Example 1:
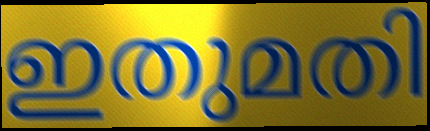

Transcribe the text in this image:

ഇതുമതി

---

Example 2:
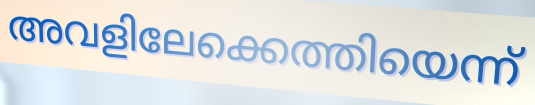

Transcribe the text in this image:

അവളിലേക്കെത്തിയെന്ന്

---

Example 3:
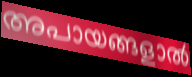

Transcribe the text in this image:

അപായങ്ങളാൽ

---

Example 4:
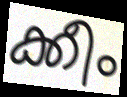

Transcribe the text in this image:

ക്കീം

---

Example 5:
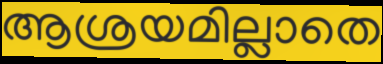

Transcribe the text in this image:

ആശ്രയമില്ലാതെ